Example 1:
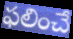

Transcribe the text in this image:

ఫలించే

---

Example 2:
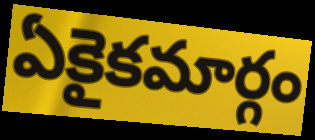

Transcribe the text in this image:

ఏకైకమార్గం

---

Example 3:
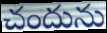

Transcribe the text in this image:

చందును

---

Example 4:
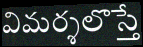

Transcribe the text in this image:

విమర్శలొస్తే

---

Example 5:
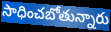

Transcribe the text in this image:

సాధించబోతున్నారు